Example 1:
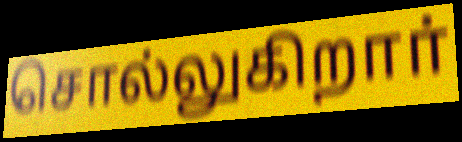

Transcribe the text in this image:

சொல்லுகிறார்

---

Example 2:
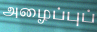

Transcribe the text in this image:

அழைப்புப்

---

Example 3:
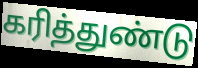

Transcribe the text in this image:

கரித்துண்டு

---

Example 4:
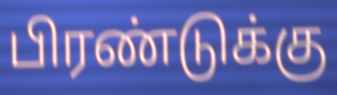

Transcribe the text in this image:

பிரண்டுக்கு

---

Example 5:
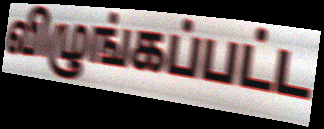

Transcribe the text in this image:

விழுங்கப்பட்ட